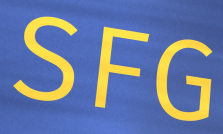
SFG